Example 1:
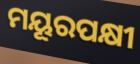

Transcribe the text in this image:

ମୟୂରପକ୍ଷୀ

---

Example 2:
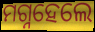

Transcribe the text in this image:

ମଗ୍ନହେଲେ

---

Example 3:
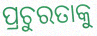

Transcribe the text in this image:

ପ୍ରଚୁରତାକୁ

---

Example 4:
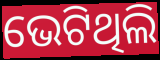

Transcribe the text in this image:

ଭେଟିଥିଲି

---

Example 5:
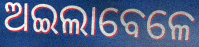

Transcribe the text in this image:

ଅଇଲାବେଳେ